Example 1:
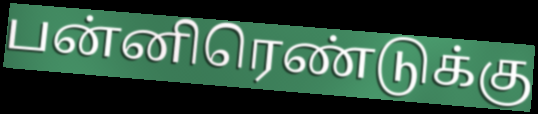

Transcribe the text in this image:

பன்னிரெண்டுக்கு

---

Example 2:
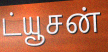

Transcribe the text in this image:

ட்யூசன்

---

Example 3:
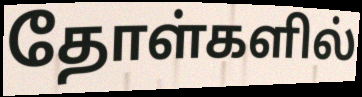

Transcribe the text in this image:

தோள்களில்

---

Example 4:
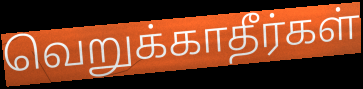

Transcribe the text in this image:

வெறுக்காதீர்கள்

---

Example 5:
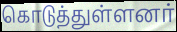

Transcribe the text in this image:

கொடுத்துள்ளனர்